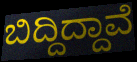
ಬಿದ್ದಿದ್ದಾವೆ